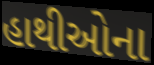
હાથીઓના